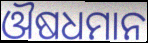
ଔଷଧମାନ